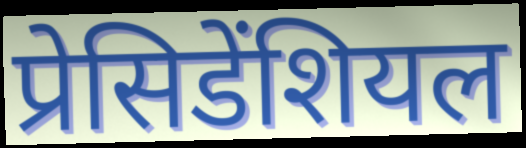
प्रेसिडेंशियल